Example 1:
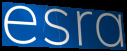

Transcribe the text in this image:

esra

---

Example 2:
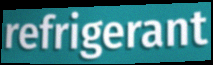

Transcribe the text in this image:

refrigerant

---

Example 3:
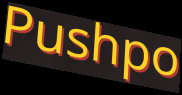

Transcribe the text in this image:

Pushpo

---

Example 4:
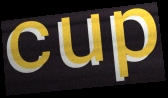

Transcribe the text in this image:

cup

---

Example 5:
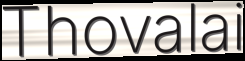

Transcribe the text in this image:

Thovalai